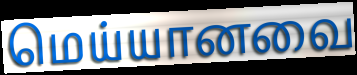
மெய்யானவை